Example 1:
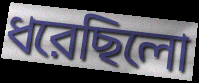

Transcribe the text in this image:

ধরেছিলো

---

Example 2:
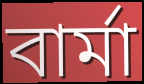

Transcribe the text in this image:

বার্মা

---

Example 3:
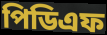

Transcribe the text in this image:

পিডিএফ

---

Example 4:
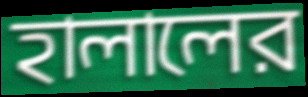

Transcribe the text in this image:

হালালের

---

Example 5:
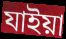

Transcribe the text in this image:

যাইয়া